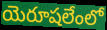
యెరూషలేంలో